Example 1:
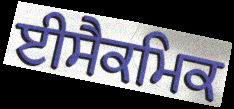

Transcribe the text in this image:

ਈਸੈਕਮਿਕ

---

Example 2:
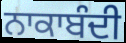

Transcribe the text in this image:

ਨਾਕਾਬੰਦੀ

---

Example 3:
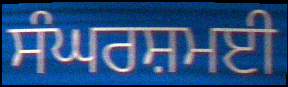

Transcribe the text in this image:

ਸੰਘਰਸ਼ਮਈ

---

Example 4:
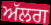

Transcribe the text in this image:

ਅੱਲਗ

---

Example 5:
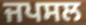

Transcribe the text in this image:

ਜਪਸਲ